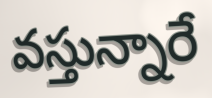
వస్తున్నారే